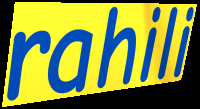
rahili